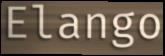
Elango